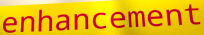
enhancement